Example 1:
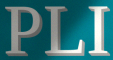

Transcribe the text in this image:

PLI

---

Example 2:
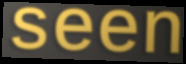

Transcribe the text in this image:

seen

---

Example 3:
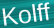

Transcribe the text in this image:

Kolff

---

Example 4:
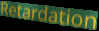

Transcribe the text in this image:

Retardation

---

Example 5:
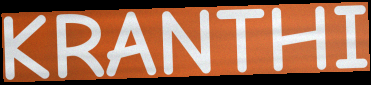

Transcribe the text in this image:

KRANTHI